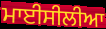
ਮਾਈਸੀਲੀਆ